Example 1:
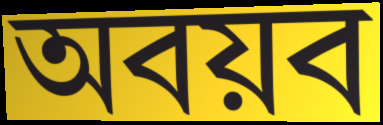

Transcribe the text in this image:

অবয়ব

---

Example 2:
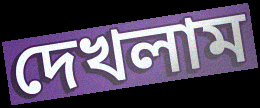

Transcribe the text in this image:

দেখলাম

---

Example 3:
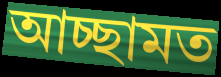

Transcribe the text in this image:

আচ্ছামত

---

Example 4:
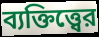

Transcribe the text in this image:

ব্যক্তিত্ত্বের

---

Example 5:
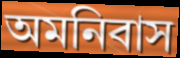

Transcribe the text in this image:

অমনিবাস